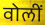
वोलीं